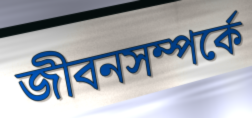
জীবনসম্পর্কে